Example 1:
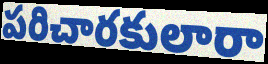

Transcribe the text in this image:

పరిచారకులారా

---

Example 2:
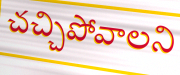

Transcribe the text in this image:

చచ్చిపోవాలని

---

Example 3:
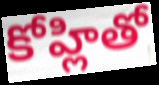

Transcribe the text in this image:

కోహ్లితో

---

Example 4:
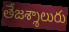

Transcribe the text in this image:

తేజశ్శాలురు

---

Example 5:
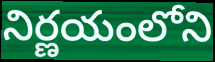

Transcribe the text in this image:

నిర్ణయంలోని